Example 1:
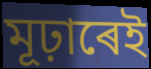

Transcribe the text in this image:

মূঢ়াৰেই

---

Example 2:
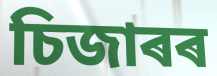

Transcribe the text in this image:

চিজাৰৰ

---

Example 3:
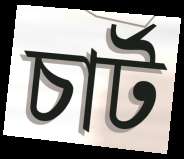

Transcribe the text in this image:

চাৰ্ট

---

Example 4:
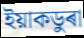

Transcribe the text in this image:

ইয়াকডুৰা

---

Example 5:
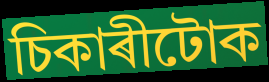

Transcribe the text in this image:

চিকাৰীটোক